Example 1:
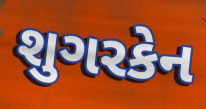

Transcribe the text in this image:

શુગરકેન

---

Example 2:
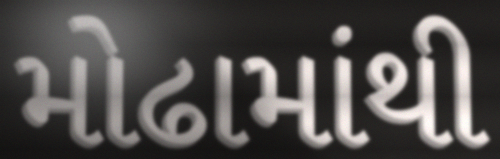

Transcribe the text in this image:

મોઢામાંથી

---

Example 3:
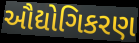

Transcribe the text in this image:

ઔદ્યોગિકરણ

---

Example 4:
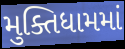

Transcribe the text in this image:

મુક્તિધામમાં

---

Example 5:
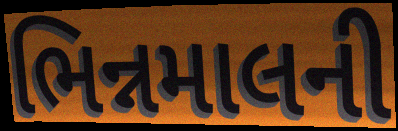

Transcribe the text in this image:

ભિન્નમાલની